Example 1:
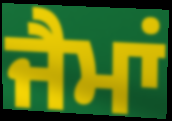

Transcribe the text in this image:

ਜੈਮਾਂ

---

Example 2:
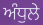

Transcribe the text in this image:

ਅੰਧੁਲੇ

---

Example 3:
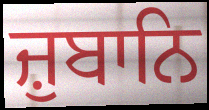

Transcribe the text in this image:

ਜ਼ੁਬਾਨਿ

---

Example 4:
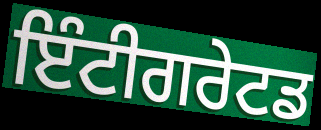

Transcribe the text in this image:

ਇੰਟੀਗਰੇਟਡ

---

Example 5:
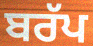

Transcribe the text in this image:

ਬਰੱਪ